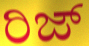
ರಿಜ್